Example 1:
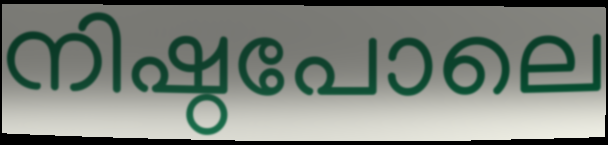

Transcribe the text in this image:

നിഷ്ഠപോലെ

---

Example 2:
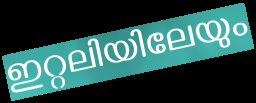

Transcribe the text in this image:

ഇറ്റലിയിലേയും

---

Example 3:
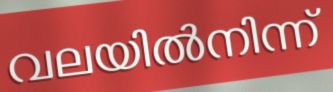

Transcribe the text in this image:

വലയിൽനിന്ന്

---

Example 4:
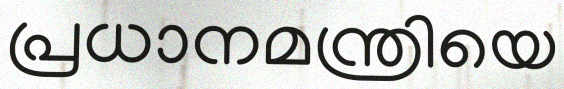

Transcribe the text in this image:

പ്രധാനമന്ത്രിയെ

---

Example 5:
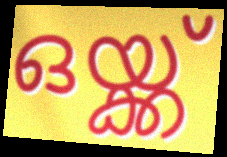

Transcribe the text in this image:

ഒയ്ക്ക്